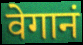
वेगानं